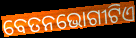
ବେତନଭୋଗୀଟିଏ